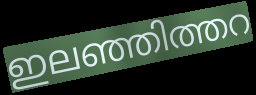
ഇലഞ്ഞിത്തറ